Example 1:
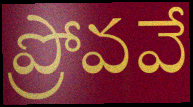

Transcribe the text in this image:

ప్రోవవే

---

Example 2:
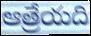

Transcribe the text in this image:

ఆత్రేయది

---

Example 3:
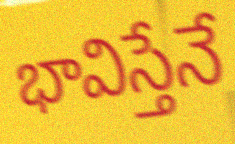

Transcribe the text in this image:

భావిస్తేనే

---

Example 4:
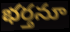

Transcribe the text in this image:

భర్తనూ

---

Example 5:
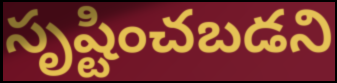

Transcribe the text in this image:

సృష్టించబడని